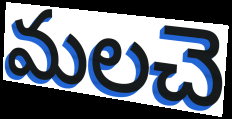
మలచె